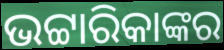
ଭଟ୍ଟାରିକାଙ୍କର